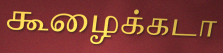
கூழைக்கடா